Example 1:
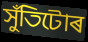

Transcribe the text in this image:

সুঁতিটোৰ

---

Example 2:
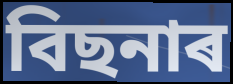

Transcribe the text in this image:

বিছনাৰ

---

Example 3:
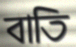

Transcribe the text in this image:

বাতি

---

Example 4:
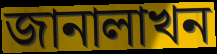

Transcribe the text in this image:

জানালাখন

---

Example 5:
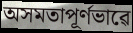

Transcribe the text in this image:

অসমতাপূৰ্ণভাৱে